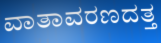
ವಾತಾವರಣದತ್ತ